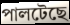
পালটেছে